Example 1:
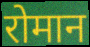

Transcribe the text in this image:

रोमान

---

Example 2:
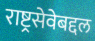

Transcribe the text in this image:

राष्ट्रसेवेबद्दल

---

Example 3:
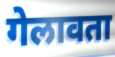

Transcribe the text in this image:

गेलावता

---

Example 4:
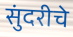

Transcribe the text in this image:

सुंदरीचे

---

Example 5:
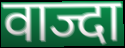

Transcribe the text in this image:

वाज्दा